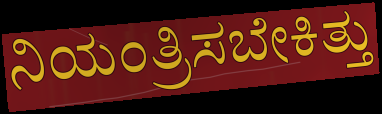
ನಿಯಂತ್ರಿಸಬೇಕಿತ್ತು